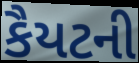
કૈયટની